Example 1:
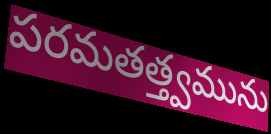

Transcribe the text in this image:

పరమతత్త్వమును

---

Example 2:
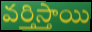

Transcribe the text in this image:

వర్తిస్తాయి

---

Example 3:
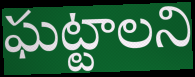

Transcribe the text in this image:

ఘట్టాలని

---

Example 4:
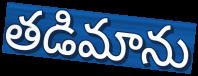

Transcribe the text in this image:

తడిమాను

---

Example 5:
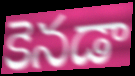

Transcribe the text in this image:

కెనడా